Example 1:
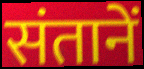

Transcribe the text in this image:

संतानें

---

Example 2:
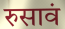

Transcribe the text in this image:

रुसावं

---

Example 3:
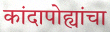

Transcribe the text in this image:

कांदापोह्यांचा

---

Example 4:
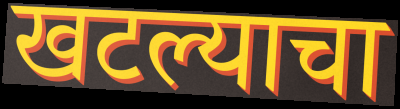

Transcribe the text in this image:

खटल्याचा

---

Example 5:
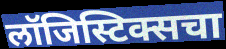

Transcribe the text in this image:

लॉजिस्टिक्सचा